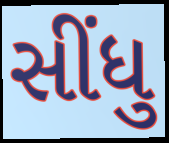
સીંધુ